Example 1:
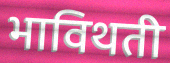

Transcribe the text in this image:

भाविथती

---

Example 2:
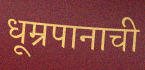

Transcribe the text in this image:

धूम्रपानाची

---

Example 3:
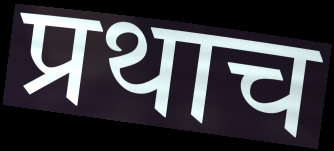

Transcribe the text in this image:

प्रथाच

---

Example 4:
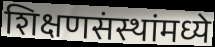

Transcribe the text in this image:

शिक्षणसंस्थांमध्ये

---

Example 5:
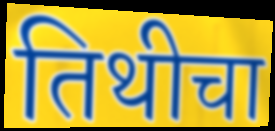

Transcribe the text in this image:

तिथीचा